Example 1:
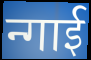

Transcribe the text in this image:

न्गाई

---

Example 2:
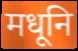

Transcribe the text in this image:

मधूनि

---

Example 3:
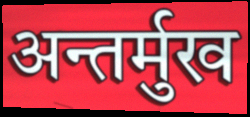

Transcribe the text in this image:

अन्तर्मुख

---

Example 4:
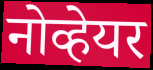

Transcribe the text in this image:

नोव्हेयर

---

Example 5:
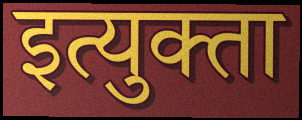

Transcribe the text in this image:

इत्युक्ता